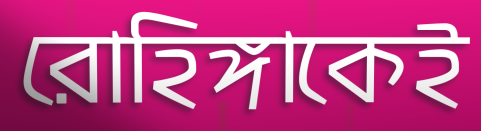
রোহিঙ্গাকেই